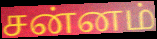
சன்னம்